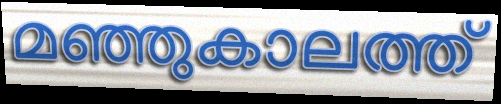
മഞ്ഞുകാലത്ത്